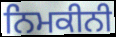
ਨਿਮਕੀਨੀ